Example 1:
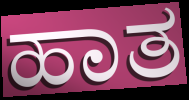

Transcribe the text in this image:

ಹಾತ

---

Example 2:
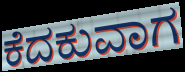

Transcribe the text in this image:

ಕೆದಕುವಾಗ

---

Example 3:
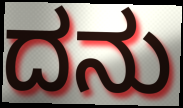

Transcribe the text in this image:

ದನು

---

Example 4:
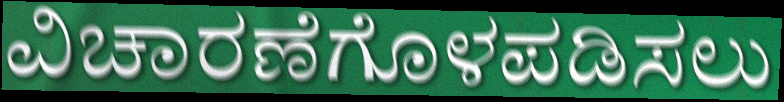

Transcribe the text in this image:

ವಿಚಾರಣೆಗೊಳಪಡಿಸಲು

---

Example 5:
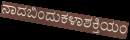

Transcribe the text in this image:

ನಾದಬಿಂದುಕಳಾಶಕ್ತಿಯಂ